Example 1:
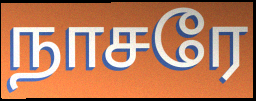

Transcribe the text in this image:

நாசரே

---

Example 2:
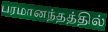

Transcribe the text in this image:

பரமானந்தத்தில்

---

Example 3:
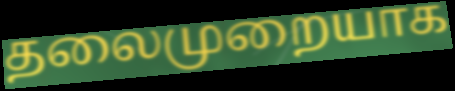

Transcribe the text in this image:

தலைமுறையாக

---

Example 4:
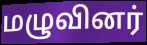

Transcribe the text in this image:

மழுவினர்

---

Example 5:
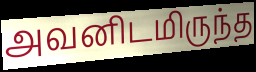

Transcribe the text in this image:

அவனிடமிருந்த